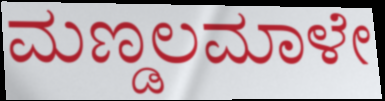
ಮಣ್ಡಲಮಾಳೇ